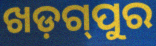
ଖଡ଼ଗ୍‌ପୁର